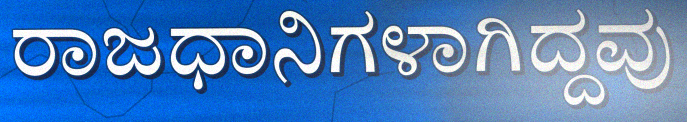
ರಾಜಧಾನಿಗಳಾಗಿದ್ದವು